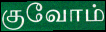
குவோம்